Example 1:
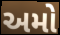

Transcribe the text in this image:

અમો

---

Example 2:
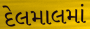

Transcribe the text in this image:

દેલમાલમાં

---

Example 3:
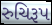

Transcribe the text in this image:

રુચિરૂપ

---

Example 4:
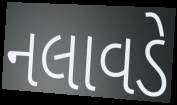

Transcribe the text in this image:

નલાવડે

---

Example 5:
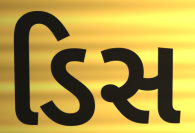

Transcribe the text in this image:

ડિસ